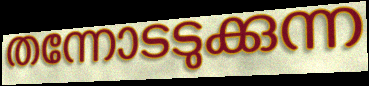
തന്നോടടുക്കുന്ന